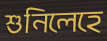
শুনিলেহে